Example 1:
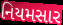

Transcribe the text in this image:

નિયમસાર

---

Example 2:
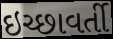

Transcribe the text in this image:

ઇચ્છાવર્તી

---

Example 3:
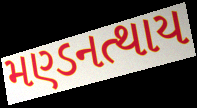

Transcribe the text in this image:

મણ્ડનત્થાય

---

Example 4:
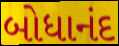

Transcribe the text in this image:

બોધાનંદ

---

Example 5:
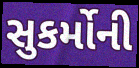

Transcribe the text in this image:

સુકર્મોની